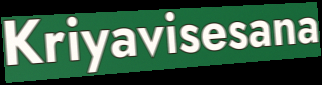
Kriyavisesana